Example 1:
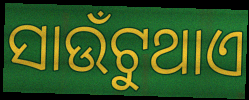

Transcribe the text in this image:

ସାଉଁଟୁଥାଏ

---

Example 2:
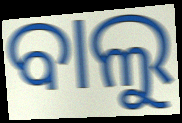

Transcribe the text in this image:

ବାଲୁ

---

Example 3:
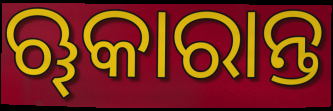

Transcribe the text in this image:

ୠକାରାନ୍ତ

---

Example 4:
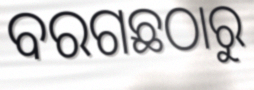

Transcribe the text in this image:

ବରଗଛଠାରୁ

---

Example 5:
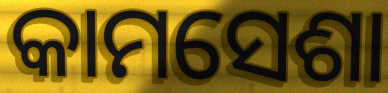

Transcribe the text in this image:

କାମସେଶା